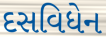
દસવિધેન